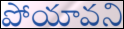
పోయావని